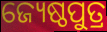
ଜ୍ୟେଷ୍ଠପୁତ୍ର